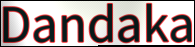
Dandaka